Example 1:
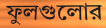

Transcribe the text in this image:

ফুলগুলোর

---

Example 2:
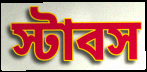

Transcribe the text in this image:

স্টাবস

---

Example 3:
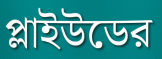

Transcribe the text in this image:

প্লাইউডের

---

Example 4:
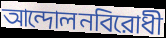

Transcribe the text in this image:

আন্দোলনবিরোধী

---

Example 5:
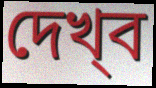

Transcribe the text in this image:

দেখ্‌ব